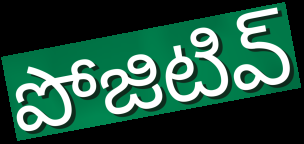
పోజిటివ్